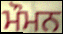
ਮੌਮਨ